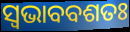
ସ୍ୱଭାବବଶତଃ